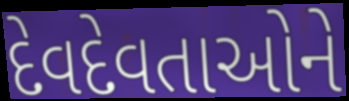
દેવદેવતાઓને